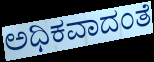
ಅಧಿಕವಾದಂತೆ